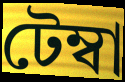
টেম্বা